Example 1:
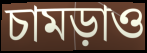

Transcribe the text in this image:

চামড়াও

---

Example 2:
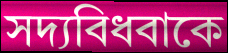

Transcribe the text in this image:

সদ্যবিধবাকে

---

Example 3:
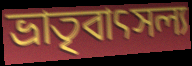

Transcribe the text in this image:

ভ্রাতৃবাৎসল্য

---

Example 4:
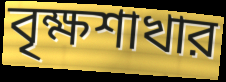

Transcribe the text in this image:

বৃক্ষশাখার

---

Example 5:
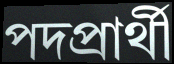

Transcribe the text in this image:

পদপ্রার্থী